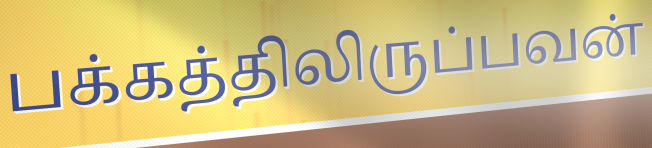
பக்கத்திலிருப்பவன்